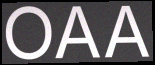
OAA